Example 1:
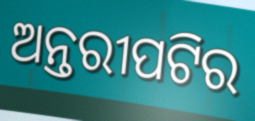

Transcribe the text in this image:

ଅନ୍ତରୀପଟିର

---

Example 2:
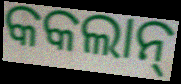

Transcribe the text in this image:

କକଲାନ୍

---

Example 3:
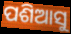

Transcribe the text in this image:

ପଶିଆସୁ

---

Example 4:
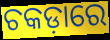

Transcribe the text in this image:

ଚକଡ଼ାରେ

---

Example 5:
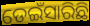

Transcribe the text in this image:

ଡେଇଁସାରିଛି